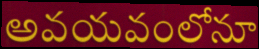
అవయవంలోనూ